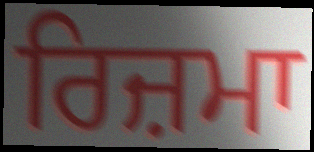
ਰਿਜ਼ਮਾ